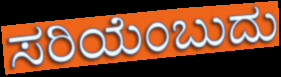
ಸರಿಯೆಂಬುದು